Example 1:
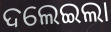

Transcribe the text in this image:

ଦଲେଇଲା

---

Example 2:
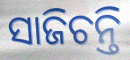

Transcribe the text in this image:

ସାଜିଚନ୍ତି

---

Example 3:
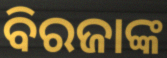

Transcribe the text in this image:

ବିରଜାଙ୍କ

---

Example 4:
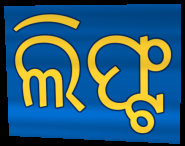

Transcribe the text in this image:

ଲିଫ୍ଟ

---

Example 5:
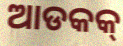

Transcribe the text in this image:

ଆଡକକ୍